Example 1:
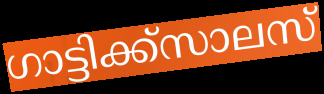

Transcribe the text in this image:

ഗാട്ടിക്ക്സാലസ്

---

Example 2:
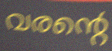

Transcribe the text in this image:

വരന്റെ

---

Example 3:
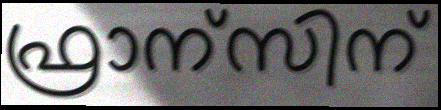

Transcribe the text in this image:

ഫ്രാന്സിന്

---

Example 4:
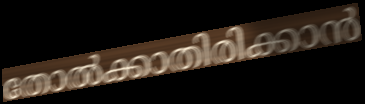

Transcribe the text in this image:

തോൽക്കാതിരിക്കാൻ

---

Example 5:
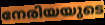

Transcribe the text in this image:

നേരിയയുടെ